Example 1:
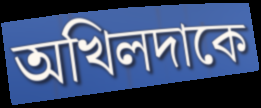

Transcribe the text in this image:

অখিলদাকে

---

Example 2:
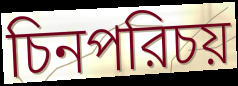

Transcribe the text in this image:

চিনপরিচয়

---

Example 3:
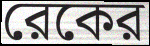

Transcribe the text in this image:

রেকের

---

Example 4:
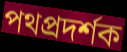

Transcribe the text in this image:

পথপ্রদর্শক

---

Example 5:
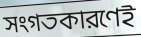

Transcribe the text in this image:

সংগতকারণেই